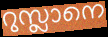
റുസ്ലാനെ